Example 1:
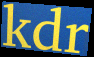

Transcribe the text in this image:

kdr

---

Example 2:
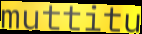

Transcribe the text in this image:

muttitu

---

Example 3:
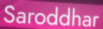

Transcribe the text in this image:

Saroddhar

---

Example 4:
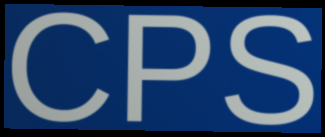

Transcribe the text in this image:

CPS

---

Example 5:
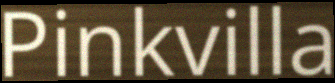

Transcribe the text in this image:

Pinkvilla